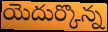
యెదుర్కొన్న